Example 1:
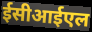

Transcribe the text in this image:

ईसीआईएल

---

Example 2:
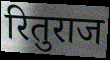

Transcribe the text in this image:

रितुराज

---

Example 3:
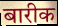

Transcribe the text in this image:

बारीक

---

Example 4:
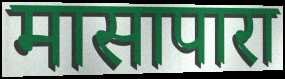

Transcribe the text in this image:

मासापारा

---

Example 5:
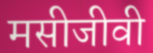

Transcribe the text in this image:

मसीजीवी